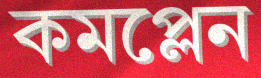
কমপ্লেন